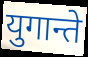
युगान्ते